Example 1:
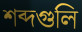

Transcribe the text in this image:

শব্দগুলি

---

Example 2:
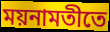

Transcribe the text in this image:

ময়নামতীতে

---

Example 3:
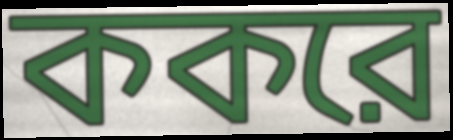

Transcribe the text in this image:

ককরে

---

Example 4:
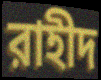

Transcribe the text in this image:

রাহীদ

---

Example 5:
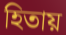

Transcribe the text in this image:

হিতায়